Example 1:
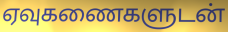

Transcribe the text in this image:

ஏவுகணைகளுடன்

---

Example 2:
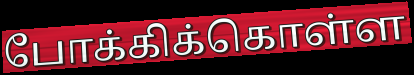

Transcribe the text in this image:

போக்கிக்கொள்ள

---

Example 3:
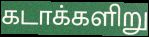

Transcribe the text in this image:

கடாக்களிறு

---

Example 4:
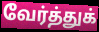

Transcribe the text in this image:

வேர்த்துக்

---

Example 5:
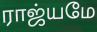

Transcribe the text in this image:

ராஜ்யமே